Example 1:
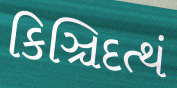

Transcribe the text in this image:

કિઞ્ચિદત્થં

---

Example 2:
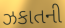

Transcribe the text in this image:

ઝકાતની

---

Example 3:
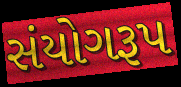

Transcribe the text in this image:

સંયોગરૂપ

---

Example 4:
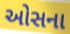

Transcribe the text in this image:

ઓસના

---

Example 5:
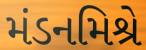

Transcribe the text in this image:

મંડનમિશ્રે